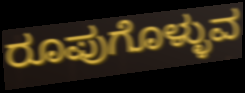
ರೂಪುಗೊಳ್ಳುವ